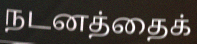
நடனத்தைக்